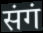
संगं